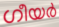
ഗീയർ